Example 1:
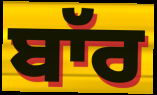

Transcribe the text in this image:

ਬਾੱਰ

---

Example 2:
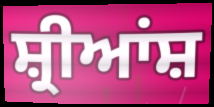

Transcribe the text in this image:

ਸ਼੍ਰੀਆਂਸ਼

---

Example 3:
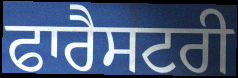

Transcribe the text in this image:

ਫਾਰੈਸਟਰੀ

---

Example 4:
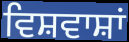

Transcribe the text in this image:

ਵਿਸ਼ਵਾਸ਼ਾਂ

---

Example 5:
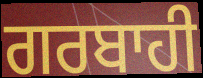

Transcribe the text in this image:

ਗਰਬਾਹੀ